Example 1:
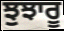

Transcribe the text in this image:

ਝੁਝਾਰੂ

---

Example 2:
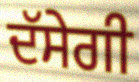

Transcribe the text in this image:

ਦੱਸੇਗੀ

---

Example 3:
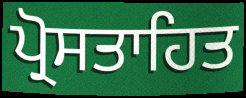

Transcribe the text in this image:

ਪ੍ਰੋਸਤਾਹਿਤ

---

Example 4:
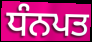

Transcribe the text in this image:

ਧੰਨਪਤ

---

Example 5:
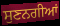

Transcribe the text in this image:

ਸੁਣਨਗੀਆਂ